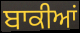
ਬਾਕੀਆਂ